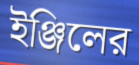
ইঞ্জিলের